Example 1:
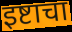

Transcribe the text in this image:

इष्टाचा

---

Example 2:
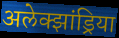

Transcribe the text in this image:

अलेक्झांड्रिया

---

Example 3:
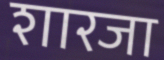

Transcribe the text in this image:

शारजा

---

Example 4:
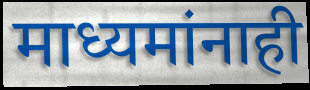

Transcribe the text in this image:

माध्यमांनाही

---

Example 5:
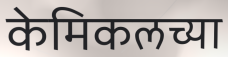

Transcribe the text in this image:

केमिकलच्या